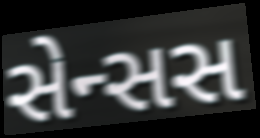
સેન્સસ